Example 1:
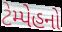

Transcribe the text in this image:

ટેમ્પેહનો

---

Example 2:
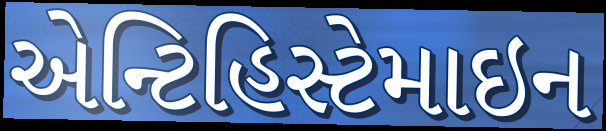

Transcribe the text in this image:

એન્ટિહિસ્ટેમાઇન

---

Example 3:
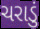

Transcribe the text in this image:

ચરાડું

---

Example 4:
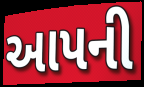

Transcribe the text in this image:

આપની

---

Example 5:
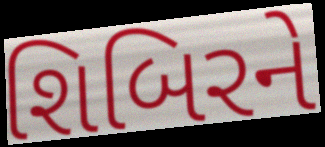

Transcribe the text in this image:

શિબિરને